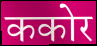
ककोर